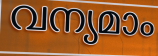
വന്യമാം